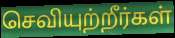
செவியுற்றீர்கள்